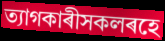
ত্যাগকাৰীসকলৰহে